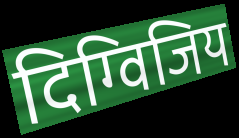
दिग्विजिय